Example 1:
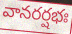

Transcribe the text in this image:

వానరర్షభః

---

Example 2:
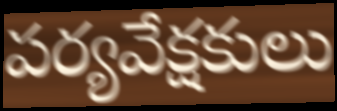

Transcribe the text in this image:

పర్యవేక్షకులు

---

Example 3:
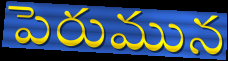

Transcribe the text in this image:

పెరుమున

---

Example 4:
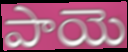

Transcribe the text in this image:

పాయె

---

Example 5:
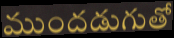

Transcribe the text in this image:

ముందడుగుతో